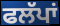
ਫਲੱਪਾਂ